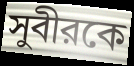
সুবীরকে